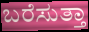
ಬರೆಸುತ್ತಾ